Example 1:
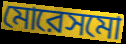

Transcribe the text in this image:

মোরেসমো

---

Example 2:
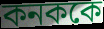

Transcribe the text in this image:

কনককে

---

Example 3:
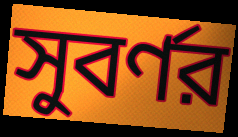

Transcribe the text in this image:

সুবর্ণর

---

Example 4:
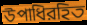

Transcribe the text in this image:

উপাধিরহিত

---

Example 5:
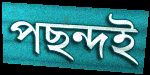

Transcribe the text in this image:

পছন্দই